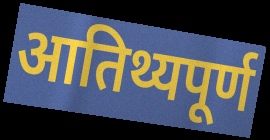
आतिथ्यपूर्ण